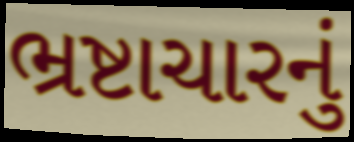
ભ્રષ્ટાચારનું